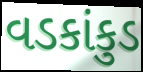
વડકાંકુડ